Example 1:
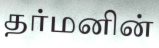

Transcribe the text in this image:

தர்மனின்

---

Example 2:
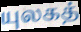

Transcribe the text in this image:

யுலகத்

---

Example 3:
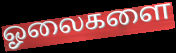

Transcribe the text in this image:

ஓலைகளை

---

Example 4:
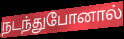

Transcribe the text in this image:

நடந்துபோனால்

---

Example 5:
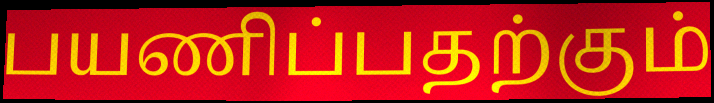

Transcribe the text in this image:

பயணிப்பதற்கும்